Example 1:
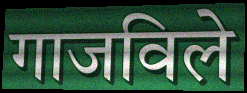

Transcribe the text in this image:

गाजविले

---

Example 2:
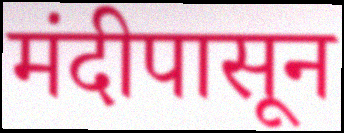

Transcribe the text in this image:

मंदीपासून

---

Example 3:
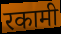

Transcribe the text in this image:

रकामी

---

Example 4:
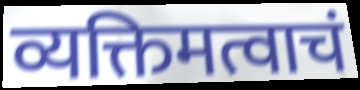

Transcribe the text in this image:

व्यक्तिमत्वाचं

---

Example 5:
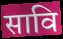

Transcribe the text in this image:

सावि